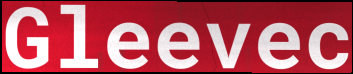
Gleevec